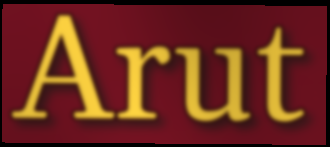
Arut